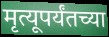
मृत्यूपर्यंतच्या